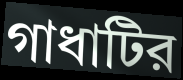
গাধাটির